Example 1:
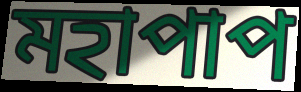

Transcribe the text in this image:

মহাপাপ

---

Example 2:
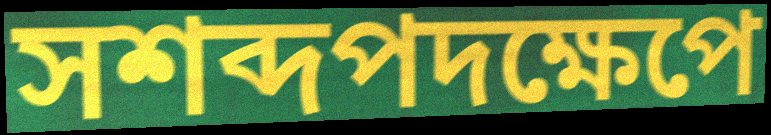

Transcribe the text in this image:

সশব্দপদক্ষেপে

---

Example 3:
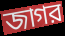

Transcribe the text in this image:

জাগর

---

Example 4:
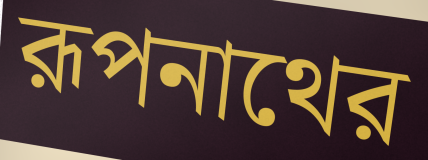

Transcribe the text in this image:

রূপনাথের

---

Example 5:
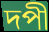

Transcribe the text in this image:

দপী